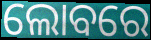
ଲୋବରେ